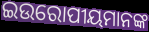
ଇଉରୋପୀୟମାନଙ୍କ